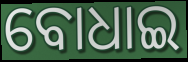
ବୋଧାଇ